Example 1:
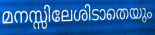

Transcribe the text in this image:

മനസ്സിലേശിടാതെയും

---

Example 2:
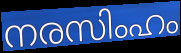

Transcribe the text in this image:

നരസിംഹം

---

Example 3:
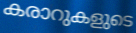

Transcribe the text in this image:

കരാറുകളുടെ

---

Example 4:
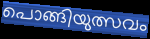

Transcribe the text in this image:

പൊങ്ങിയുത്സവം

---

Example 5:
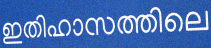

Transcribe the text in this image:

ഇതിഹാസത്തിലെ